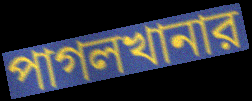
পাগলখানার